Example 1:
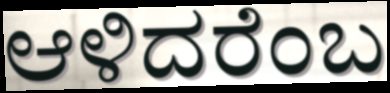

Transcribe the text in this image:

ಆಳಿದರೆಂಬ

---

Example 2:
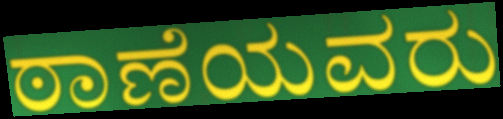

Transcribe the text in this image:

ಠಾಣೆಯವರು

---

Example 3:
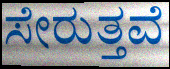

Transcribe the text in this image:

ಸೇರುತ್ತವೆ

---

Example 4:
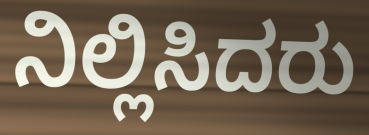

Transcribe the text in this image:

ನಿಲ್ಲಿಸಿದರು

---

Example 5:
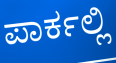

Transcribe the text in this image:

ಪಾರ್ಕಲ್ಲಿ